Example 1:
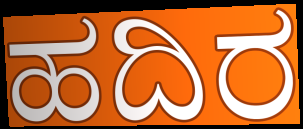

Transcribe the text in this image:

ಹದಿರ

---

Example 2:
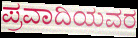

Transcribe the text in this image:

ಪ್ರವಾದಿಯವರ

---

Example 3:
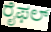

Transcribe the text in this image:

ರೈಫಲ್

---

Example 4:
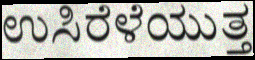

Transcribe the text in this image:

ಉಸಿರೆಳೆಯುತ್ತ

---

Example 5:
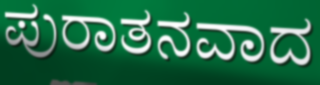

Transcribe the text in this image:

ಪುರಾತನವಾದ